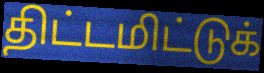
திட்டமிட்டுக்